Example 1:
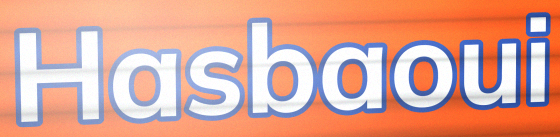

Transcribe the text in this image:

Hasbaoui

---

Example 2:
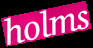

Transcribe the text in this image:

holms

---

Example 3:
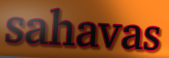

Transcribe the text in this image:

sahavas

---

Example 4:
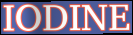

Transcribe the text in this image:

IODINE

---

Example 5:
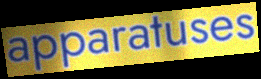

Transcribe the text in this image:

apparatuses